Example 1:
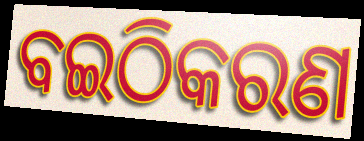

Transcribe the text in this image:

ବଇଠିକରଣ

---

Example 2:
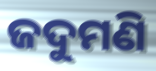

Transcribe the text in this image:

ଜଦୁମଣି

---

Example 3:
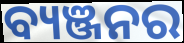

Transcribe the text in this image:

ବ୍ୟଞ୍ଜନର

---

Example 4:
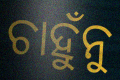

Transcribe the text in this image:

ଚାହୁଁନୁ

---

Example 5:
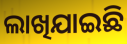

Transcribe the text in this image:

ଲାଖିଯାଇଛି